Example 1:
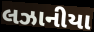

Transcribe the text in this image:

લઝાનીયા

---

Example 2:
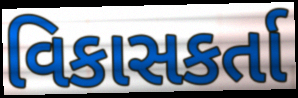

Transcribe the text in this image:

વિકાસકર્તા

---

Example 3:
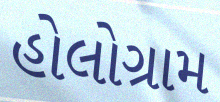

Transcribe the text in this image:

હોલોગ્રામ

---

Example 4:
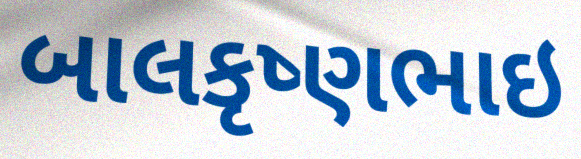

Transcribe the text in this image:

બાલકૃષ્ણભાઇ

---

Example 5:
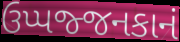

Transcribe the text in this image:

ઉપ્પજ્જનકાનં